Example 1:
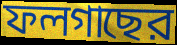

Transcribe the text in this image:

ফলগাছের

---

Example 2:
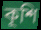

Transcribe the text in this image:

কূশি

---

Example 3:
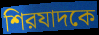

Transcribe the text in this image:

শিরযাদকে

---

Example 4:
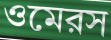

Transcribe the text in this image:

ওমেরস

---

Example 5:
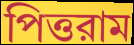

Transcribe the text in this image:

পিত্তরাম